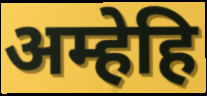
अम्हेहि